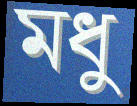
মধু